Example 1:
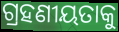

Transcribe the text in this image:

ଗ୍ରହଣୀୟତାକୁ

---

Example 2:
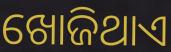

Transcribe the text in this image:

ଖୋଜିଥାଏ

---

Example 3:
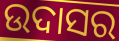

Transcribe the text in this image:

ଉଦାସର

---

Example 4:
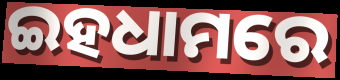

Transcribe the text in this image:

ଇହଧାମରେ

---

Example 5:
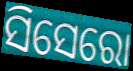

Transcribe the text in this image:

ସିସେରୋ